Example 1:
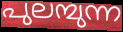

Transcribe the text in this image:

പുലമ്പുന്ന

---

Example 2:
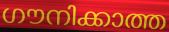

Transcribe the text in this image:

ഗൗനിക്കാത്ത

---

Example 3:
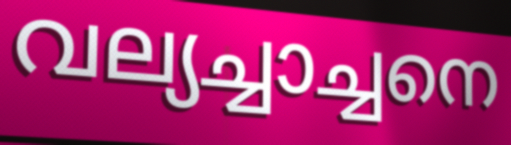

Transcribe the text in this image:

വല്യച്ചാച്ചനെ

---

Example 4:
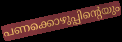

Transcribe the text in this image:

പണക്കൊഴുപ്പിന്റെയും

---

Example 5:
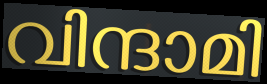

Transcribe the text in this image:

വിന്ദാമി